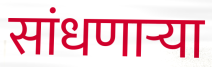
सांधणार्‍या